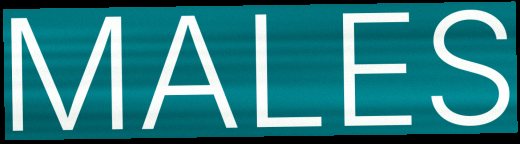
MALES